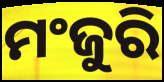
ମଂଜୁରି